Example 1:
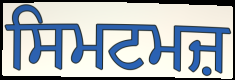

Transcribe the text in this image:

ਸਿਮਟਮਜ਼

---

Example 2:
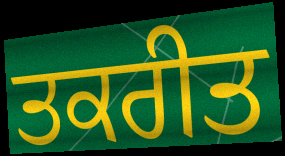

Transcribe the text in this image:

ਤਕਰੀਤ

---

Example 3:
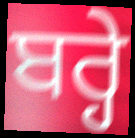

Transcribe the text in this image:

ਬਰ੍ਹੇ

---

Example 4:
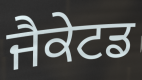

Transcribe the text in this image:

ਜੈਕੇਟਡ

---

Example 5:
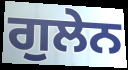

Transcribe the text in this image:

ਗੁਲੇਨ